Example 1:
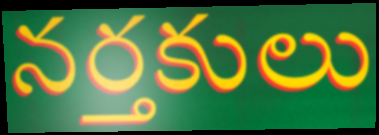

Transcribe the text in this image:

నర్తకులు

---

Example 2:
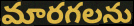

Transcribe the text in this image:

మారగలను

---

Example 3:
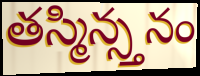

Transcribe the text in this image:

తస్మిన్స్తనం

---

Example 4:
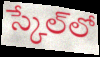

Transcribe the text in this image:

స్కేల్‌లో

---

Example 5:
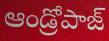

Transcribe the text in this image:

ఆండ్రోపాజ్